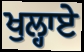
ਖੁਲ੍ਹਾਏ